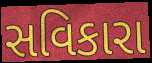
સવિકારા